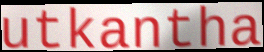
utkantha